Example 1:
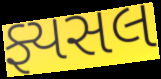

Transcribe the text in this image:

ફ્યસલ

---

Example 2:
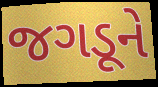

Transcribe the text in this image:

જગડૂને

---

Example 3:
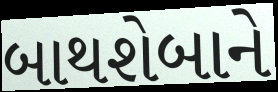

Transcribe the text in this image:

બાથશેબાને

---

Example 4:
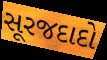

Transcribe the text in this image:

સૂરજદાદો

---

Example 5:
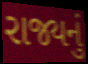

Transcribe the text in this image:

રાજ્યનું